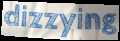
dizzying